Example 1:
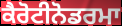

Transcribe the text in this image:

ਕੈਰੋਟੀਨੋਡਰਮਾ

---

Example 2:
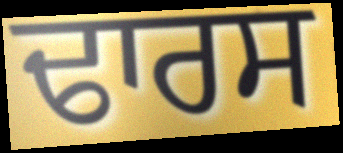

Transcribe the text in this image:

ਢਾਰਸ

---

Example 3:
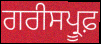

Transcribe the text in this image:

ਗਰੀਸਪ੍ਰੂਫ਼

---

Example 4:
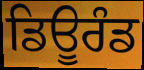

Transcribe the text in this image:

ਡਿਊਰੰਡ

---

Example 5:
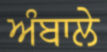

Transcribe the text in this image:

ਅੰਬਾਲੇ